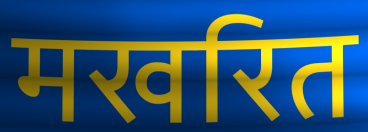
मखरित